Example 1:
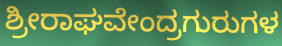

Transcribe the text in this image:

ಶ್ರೀರಾಘವೇಂದ್ರಗುರುಗಳ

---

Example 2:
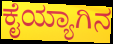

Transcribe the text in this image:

ಕೈಯ್ಯಾಗಿನ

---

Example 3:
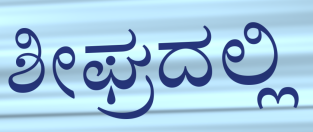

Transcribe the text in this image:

ಶೀಘ್ರದಲ್ಲಿ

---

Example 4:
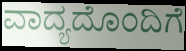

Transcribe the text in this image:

ವಾದ್ಯದೊಂದಿಗೆ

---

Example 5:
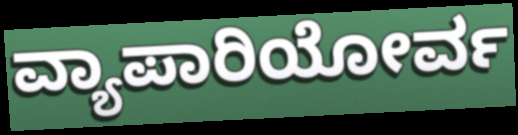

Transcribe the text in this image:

ವ್ಯಾಪಾರಿಯೋರ್ವ